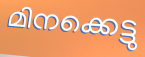
മിനക്കെട്ടു